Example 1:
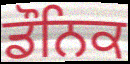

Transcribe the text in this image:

ਡੌਨਿਕ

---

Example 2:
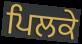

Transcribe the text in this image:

ਪਿਲਕੇ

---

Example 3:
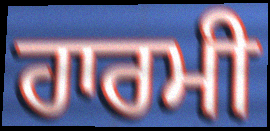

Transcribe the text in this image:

ਹਾਰਮੀ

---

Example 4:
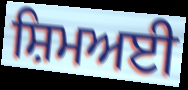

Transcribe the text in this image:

ਸ਼ਿਮਅਈ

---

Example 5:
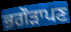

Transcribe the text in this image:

ਭਗੌੜਾਪਣ